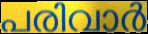
പരിവാർ